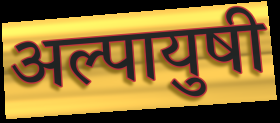
अल्पायुषी